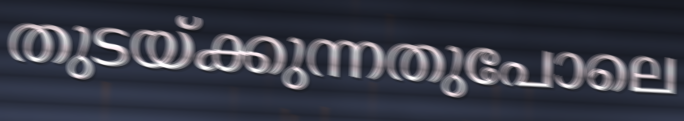
തുടയ്ക്കുന്നതുപോലെ